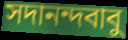
সদানন্দবাবু